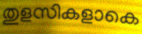
തുളസികളാകെ